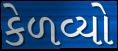
કેળવ્યો